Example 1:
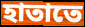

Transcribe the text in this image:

হাতাতে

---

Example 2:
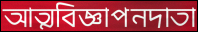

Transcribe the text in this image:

আত্মবিজ্ঞাপনদাতা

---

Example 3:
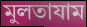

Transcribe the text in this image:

মুলতাযাম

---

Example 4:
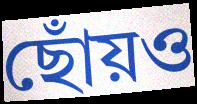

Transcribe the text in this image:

ছোঁয়ও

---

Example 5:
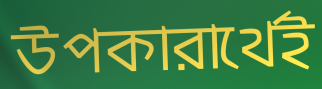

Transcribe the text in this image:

উপকারার্থেই